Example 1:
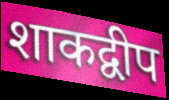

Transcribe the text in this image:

शाकद्वीप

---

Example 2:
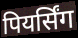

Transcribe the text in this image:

पियर्सिंग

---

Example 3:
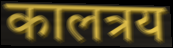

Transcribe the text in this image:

कालत्रय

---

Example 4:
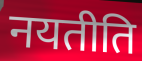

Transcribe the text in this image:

नयतीति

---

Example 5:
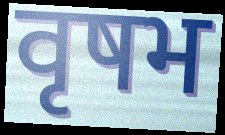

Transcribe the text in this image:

वृषभ